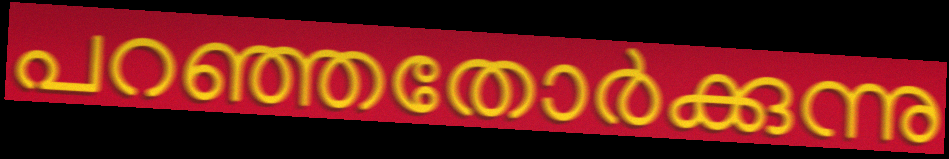
പറഞ്ഞതോർക്കുന്നു